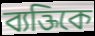
ব্যক্তিকে